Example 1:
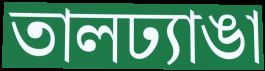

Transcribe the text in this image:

তালঢ্যাঙা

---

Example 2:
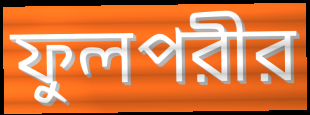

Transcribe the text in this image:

ফুলপরীর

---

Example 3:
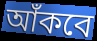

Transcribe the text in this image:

আঁকবে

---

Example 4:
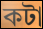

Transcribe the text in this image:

কটা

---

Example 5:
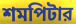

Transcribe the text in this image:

শমপিটার